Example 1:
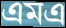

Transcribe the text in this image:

এমএ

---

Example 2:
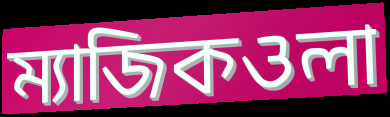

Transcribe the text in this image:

ম্যাজিকওলা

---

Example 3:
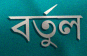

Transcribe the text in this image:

বর্তুল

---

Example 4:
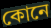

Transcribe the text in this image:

কোনে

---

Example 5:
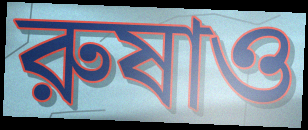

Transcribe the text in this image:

রুষাও